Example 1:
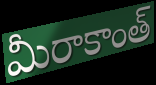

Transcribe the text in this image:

మీరాకాంత్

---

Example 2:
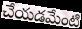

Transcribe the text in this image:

చేయడమేంటి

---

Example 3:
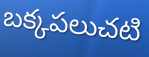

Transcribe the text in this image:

బక్కపలుచటి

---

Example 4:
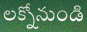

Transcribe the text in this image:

లక్నోనుండి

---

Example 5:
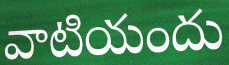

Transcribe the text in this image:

వాటియందు